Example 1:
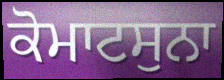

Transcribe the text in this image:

ਕੋਮਾਟਸੁਨਾ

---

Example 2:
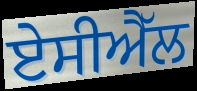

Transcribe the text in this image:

ਏਸੀਐੱਲ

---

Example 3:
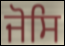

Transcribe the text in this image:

ਜੋਸਿ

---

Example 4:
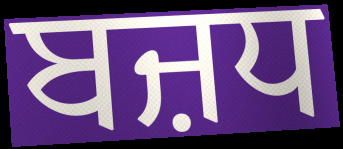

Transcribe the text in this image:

ਬਜ਼ਧ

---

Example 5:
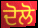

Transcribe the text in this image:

ਦੋਲੋ